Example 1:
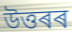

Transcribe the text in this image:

উত্তৰৰ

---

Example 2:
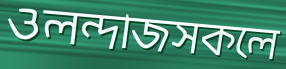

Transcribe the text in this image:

ওলন্দাজসকলে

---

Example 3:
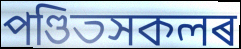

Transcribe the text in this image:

পণ্ডিতসকলৰ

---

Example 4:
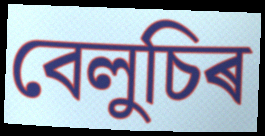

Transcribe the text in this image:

বেলুচিৰ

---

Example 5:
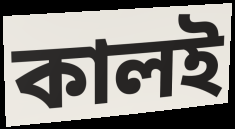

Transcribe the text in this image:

কালই